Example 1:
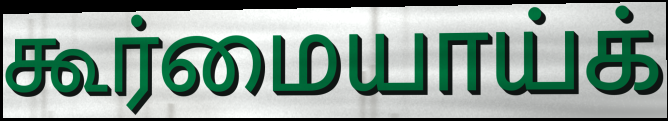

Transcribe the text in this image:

கூர்மையாய்க்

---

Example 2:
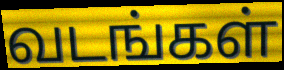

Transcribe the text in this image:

வடங்கள்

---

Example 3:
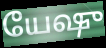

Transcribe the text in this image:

யேஷு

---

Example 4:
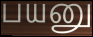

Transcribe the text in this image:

பயனு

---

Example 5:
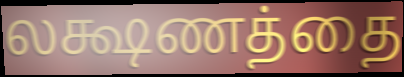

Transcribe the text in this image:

லக்ஷணத்தை